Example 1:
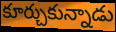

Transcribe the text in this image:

కూర్చుకున్నాడు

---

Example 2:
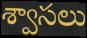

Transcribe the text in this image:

శ్వాసలు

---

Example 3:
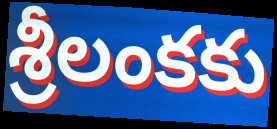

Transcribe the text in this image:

శ్రీలంకకు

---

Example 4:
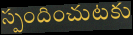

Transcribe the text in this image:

స్పందించుటకు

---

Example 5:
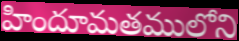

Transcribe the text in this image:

హిందూమతములోని